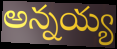
అన్నయ్య